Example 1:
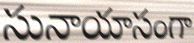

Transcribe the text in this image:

సునాయాసంగా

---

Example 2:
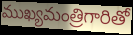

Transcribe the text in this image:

ముఖ్యమంత్రిగారితో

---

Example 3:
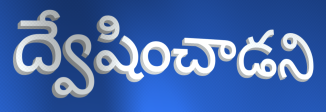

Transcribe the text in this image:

ద్వేషించాడని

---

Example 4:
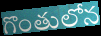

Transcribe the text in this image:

గొంతులోన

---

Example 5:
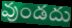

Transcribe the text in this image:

వుండదు